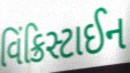
વિંક્રિસ્ટાઈન